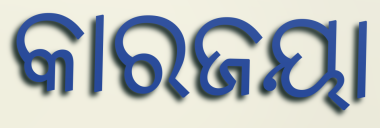
କାରଜୟା